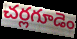
చర్లగూడెం